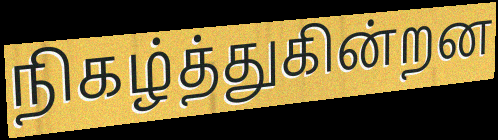
நிகழ்த்துகின்றன